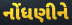
નોંધણીને